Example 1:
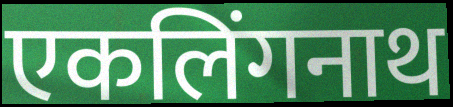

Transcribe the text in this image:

एकलिंगनाथ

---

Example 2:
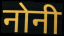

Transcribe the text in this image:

नोनी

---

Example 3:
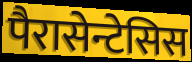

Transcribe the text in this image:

पैरासेन्टेसिस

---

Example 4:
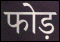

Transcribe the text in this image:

फोड़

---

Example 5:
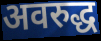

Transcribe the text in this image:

अवरुद्ध